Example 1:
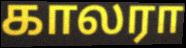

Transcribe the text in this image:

காலரா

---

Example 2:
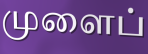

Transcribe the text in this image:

முளைப்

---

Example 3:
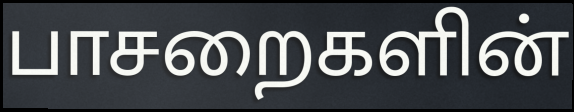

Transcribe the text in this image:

பாசறைகளின்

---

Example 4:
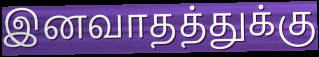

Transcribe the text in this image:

இனவாதத்துக்கு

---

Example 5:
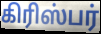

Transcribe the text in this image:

கிரிஸ்பர்